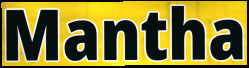
Mantha